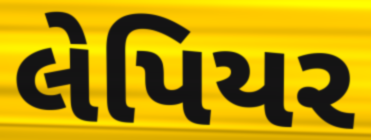
લેપિયર